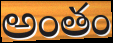
అంతం